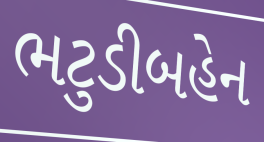
ભટુડીબહેન